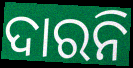
ଦାରନି